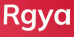
Rgya